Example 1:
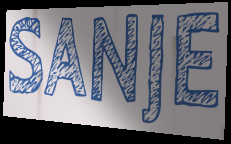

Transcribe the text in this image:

SANJE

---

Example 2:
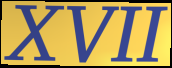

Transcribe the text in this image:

XVII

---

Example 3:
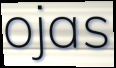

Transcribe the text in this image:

ojas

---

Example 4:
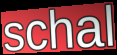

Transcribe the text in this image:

schal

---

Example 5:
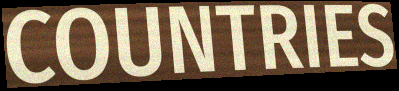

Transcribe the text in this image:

COUNTRIES